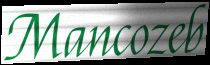
Mancozeb